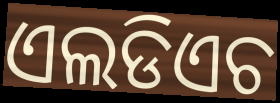
ଏଲଡିଏଚ